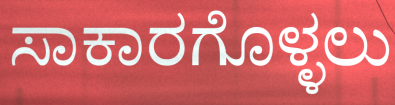
ಸಾಕಾರಗೊಳ್ಳಲು